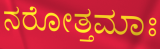
ನರೋತ್ತಮಾಃ